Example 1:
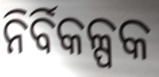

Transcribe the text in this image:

ନିର୍ବିକଳ୍ପକ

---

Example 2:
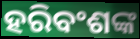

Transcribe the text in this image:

ହରିବଂଶଙ୍କ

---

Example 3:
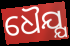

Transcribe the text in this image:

ଧୈଯ୍ଯ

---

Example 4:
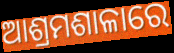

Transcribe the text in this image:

ଆଶ୍ରମଶାଳାରେ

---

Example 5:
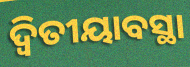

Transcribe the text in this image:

ଦ୍ବିତୀୟାବସ୍ଥା